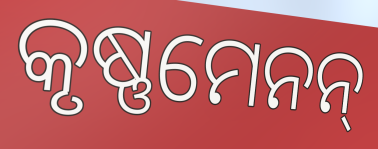
କୃଷ୍ଣମେନନ୍